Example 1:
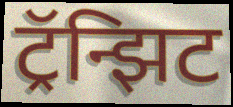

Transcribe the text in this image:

ट्रॅन्झिट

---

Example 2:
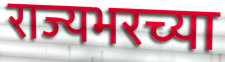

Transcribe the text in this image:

राज्यभरच्या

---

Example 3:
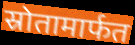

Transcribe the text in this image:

स्रोतामार्फत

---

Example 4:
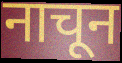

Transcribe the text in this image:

नाचून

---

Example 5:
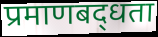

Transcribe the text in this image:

प्रमाणबद्धता